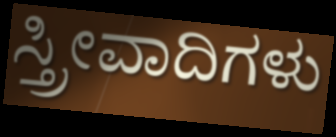
ಸ್ತ್ರೀವಾದಿಗಳು